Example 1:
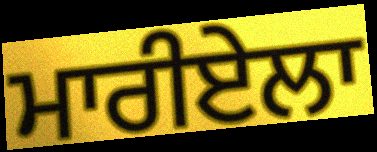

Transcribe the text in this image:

ਮਾਰੀਏਲਾ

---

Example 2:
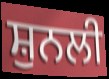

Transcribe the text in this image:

ਸ਼ੁਨਲੀ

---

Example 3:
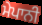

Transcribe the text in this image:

ਮੇਪਾਨੀ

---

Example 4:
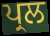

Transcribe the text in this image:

ਪ੍ਰਲ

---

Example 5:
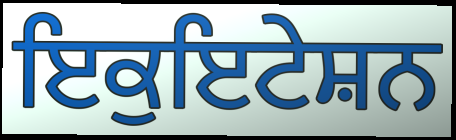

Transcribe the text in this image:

ਇਕੁਇਟੇਸ਼ਨ